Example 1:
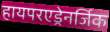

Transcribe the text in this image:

हायपरएड्रेनर्जिक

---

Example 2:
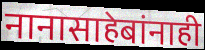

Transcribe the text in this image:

नानासाहेबांनाही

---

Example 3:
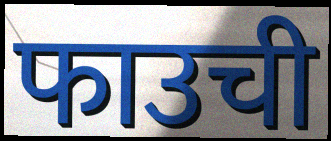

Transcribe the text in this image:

फाउची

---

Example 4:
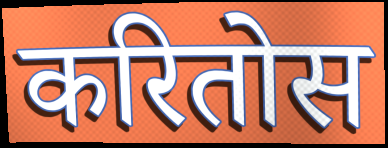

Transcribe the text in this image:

करितोस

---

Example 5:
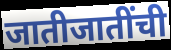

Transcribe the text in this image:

जातीजातींची